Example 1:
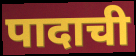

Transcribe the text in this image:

पादाची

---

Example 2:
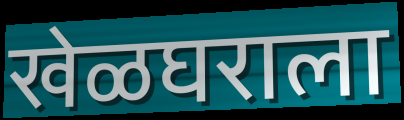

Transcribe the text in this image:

खेळघराला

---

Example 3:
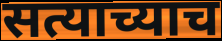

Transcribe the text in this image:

सत्याच्याच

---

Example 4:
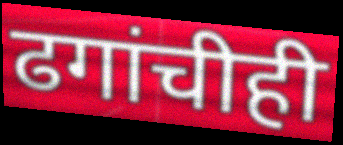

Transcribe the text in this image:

ढगांचीही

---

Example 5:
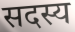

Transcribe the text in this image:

सदस्य